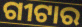
ଗୀଟାର